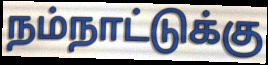
நம்நாட்டுக்கு